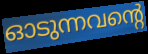
ഓടുന്നവന്റെ